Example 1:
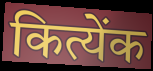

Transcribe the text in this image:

कित्येंक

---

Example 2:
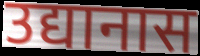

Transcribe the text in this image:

उद्यानास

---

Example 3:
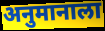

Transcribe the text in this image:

अनुमानाला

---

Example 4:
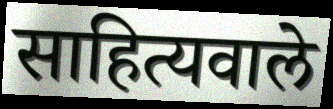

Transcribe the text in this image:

साहित्यवाले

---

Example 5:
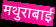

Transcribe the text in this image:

मथुराबाई